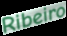
Ribeiro